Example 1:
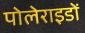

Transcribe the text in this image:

पोलेराइडों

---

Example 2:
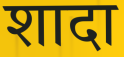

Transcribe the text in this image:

शादा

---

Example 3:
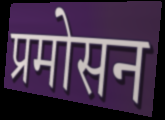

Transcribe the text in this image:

प्रमोसन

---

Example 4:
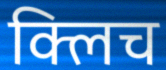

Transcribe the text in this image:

क्लिच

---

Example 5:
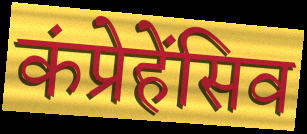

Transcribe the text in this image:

कंप्रेहेंसिव